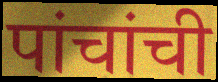
पांचांची